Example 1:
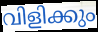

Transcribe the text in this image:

വിളിക്കും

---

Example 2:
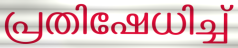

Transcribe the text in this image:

പ്രതിഷേധിച്ച്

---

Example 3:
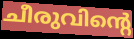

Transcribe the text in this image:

ചീരുവിന്റെ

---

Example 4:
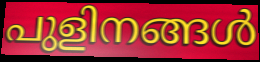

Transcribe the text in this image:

പുളിനങ്ങൾ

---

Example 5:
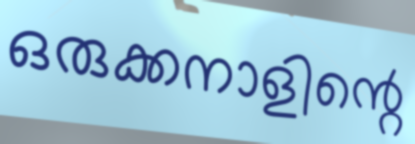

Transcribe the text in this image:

ഒരുക്കനാളിന്റെ